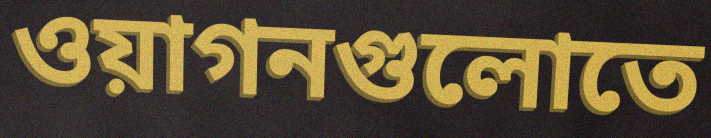
ওয়াগনগুলোতে